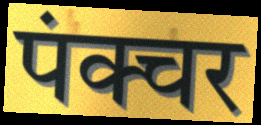
पंक्चर